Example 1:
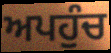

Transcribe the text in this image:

ਅਪਹੁੰਚ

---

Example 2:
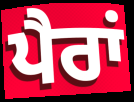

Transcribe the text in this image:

ਪੈਰਾਂ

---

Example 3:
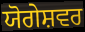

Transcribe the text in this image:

ਯੋਗੇਸ਼ਵਰ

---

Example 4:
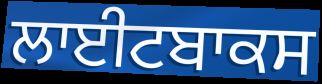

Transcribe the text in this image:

ਲਾਈਟਬਾਕਸ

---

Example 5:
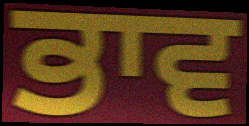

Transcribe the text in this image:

ਭਾਵ